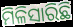
ମିଳିସାରିଛି